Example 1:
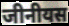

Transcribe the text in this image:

जीनीयस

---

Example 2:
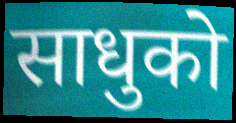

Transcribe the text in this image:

साधुको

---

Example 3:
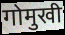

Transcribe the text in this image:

गोमुखी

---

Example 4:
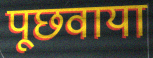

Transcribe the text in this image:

पूछवाया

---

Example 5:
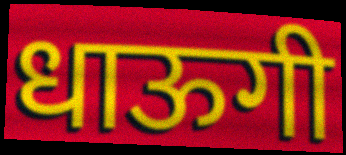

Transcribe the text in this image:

धाऊगी